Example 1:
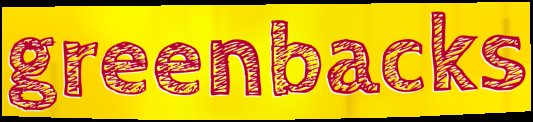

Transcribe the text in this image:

greenbacks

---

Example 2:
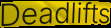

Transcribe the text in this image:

Deadlifts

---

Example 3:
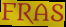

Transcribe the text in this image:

FRAS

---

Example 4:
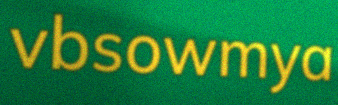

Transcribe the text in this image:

vbsowmya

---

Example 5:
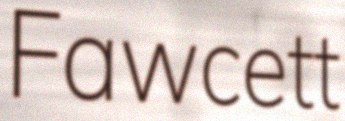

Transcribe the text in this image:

Fawcett